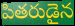
పితరుడైన